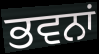
ਭਵਨਾਂ